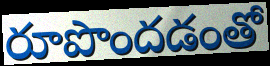
రూపొందడంతో